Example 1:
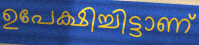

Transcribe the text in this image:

ഉപേക്ഷിച്ചിട്ടാണ്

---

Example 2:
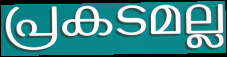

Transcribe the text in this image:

പ്രകടമല്ല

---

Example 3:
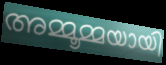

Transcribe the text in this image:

അമ്മൂമ്മയായി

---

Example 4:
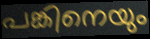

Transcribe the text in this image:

പങ്കിനെയും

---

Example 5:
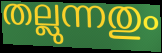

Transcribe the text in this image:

തല്ലുന്നതും